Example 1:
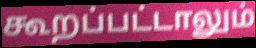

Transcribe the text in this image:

கூறப்பட்டாலும்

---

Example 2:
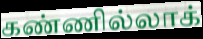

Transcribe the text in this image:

கண்ணில்லாக்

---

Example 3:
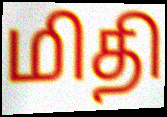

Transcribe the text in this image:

மிதி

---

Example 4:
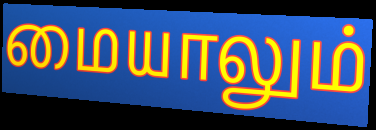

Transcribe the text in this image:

மையாலும்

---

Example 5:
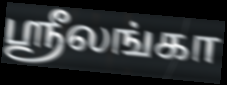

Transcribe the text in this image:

ஶ்ரீலங்கா